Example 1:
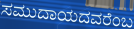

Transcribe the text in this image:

ಸಮುದಾಯದವರೆಂಬ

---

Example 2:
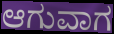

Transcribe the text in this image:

ಆಗುವಾಗ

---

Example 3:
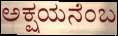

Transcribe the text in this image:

ಅಕ್ಷಯನೆಂಬ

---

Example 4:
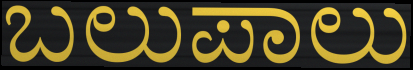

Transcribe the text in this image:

ಬಲುಪಾಲು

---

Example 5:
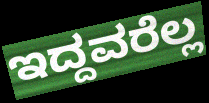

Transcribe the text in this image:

ಇದ್ದವರೆಲ್ಲ